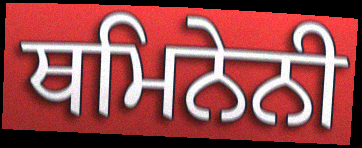
ਥਮਿਨੇਨੀ